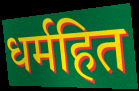
धर्महित